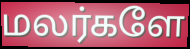
மலர்களே